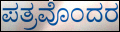
ಪತ್ರವೊಂದರ